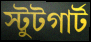
স্টুটগার্ট